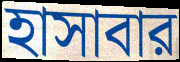
হাসাবার